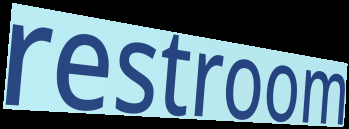
restroom